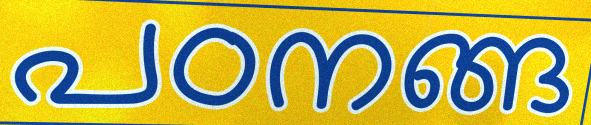
പഠനങ്ങ